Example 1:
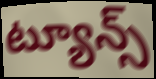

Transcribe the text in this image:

ట్యూన్స్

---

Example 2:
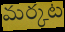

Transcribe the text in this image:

మర్కట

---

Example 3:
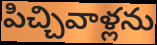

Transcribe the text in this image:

పిచ్చివాళ్లను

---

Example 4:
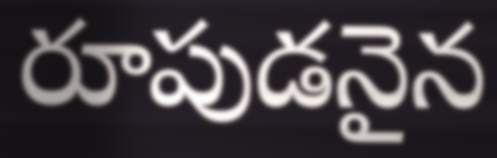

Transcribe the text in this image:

రూపుడనైన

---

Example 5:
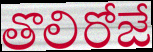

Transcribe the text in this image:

తొలిరోజే